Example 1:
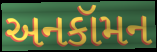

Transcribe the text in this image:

અનકૉમન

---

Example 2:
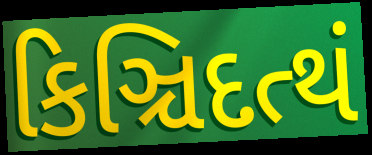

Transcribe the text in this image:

કિઞ્ચિદત્થં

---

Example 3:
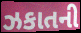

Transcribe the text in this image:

ઝકાતની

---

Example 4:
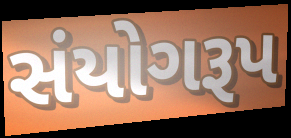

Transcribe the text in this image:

સંયોગરૂપ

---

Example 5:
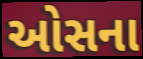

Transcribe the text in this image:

ઓસના